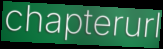
chapterurl